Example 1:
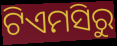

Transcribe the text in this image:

ଟିଏମସିରୁ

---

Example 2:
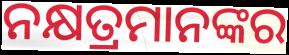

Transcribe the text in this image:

ନକ୍ଷତ୍ରମାନଙ୍କର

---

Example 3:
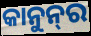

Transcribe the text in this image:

କାନୁନ୍‌ର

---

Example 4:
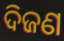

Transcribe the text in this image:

ଦିଜଣ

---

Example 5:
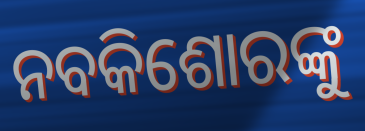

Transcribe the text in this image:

ନବକିଶୋରଙ୍କୁ